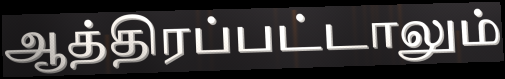
ஆத்திரப்பட்டாலும்